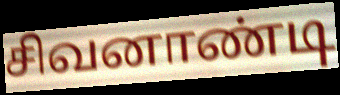
சிவனாண்டி